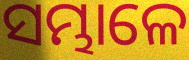
ସମ୍ଭାଳେ